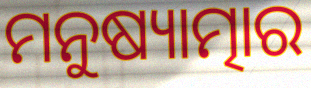
ମନୁଷ୍ୟାତ୍ମାର